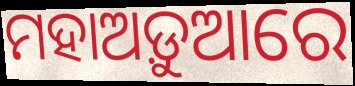
ମହାଅଡ଼ୁଆରେ